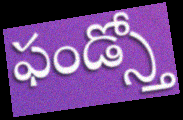
ఫండ్స్తో